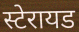
स्टेरायड